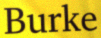
Burke